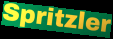
Spritzler